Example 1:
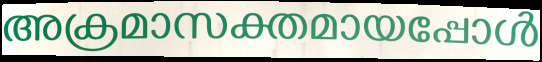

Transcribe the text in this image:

അക്രമാസക്തമായപ്പോൾ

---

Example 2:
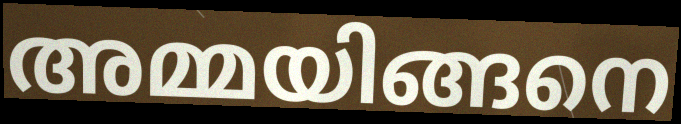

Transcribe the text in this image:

അമ്മയിങ്ങനെ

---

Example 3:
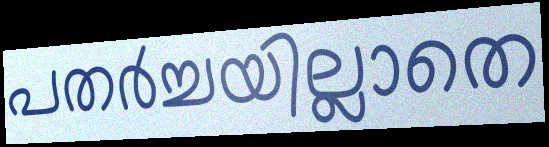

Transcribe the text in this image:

പതർച്ചയില്ലാതെ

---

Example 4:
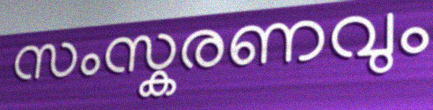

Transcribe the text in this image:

സംസ്കരണവും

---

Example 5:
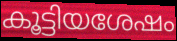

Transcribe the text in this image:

കൂട്ടിയശേഷം